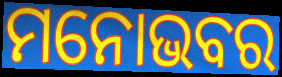
ମନୋଭବର